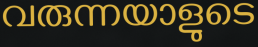
വരുന്നയാളുടെ